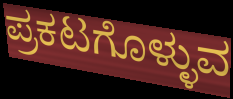
ಪ್ರಕಟಗೊಳ್ಳುವ